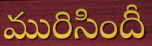
మురిసిందీ